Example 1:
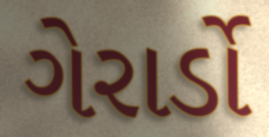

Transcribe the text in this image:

ગેરાર્ડો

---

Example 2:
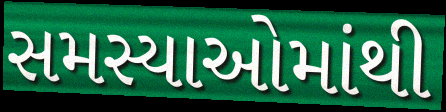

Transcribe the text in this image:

સમસ્યાઓમાંથી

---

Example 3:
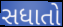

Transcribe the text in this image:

સધાતો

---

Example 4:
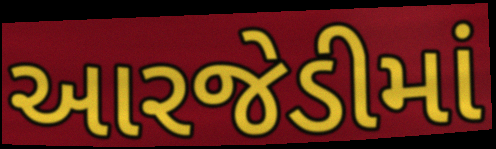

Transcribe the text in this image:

આરજેડીમાં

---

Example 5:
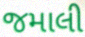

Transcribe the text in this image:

જમાલી